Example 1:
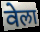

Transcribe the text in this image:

वेला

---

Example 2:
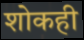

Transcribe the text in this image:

शोकही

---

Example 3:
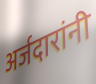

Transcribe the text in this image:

अर्जदारांनी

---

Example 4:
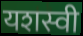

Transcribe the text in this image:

यशस्‍वी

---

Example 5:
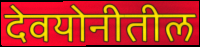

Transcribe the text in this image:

देवयोनीतील